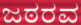
ಜಠರವ